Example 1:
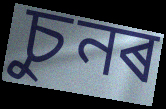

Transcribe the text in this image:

চুনৰ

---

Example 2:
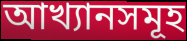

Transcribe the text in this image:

আখ্যানসমূহ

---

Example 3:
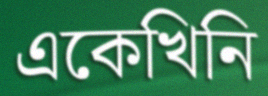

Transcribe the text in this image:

একেখিনি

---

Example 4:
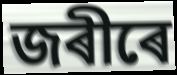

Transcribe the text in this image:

জৰীৰে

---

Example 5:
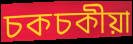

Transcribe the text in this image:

চকচকীয়া